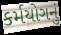
કર્મયોગનું